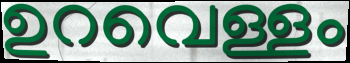
ഉറവെള്ളം